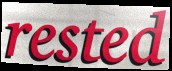
rested